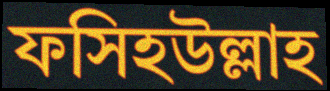
ফসিহউল্লাহ